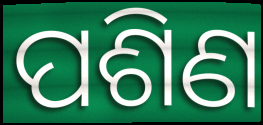
ପଶିଣ